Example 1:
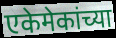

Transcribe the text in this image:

एकेमेकांच्या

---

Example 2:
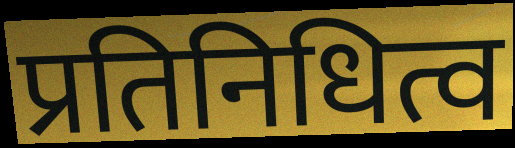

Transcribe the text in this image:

प्रतिनिधित्व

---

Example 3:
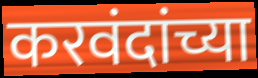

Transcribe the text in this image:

करवंदांच्या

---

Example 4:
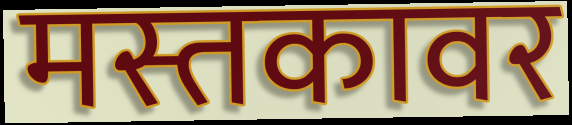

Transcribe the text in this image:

मस्तकावर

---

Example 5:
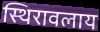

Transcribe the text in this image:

स्थिरावलाय